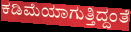
ಕಡಿಮೆಯಾಗುತ್ತಿದ್ದಂತೆ